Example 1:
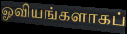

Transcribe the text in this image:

ஓவியங்களாகப்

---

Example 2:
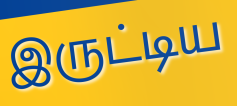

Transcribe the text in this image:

இருட்டிய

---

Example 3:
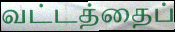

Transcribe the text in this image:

வட்டத்தைப்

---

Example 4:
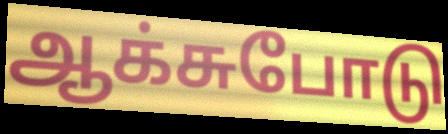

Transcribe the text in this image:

ஆக்சுபோடு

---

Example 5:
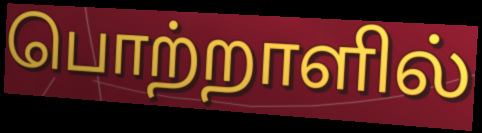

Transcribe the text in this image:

பொற்றாளில்